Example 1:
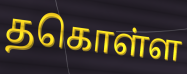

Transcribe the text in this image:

தகொள்ள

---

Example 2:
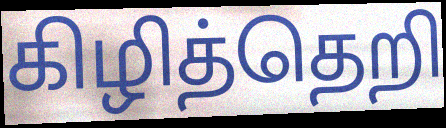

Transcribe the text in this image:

கிழித்தெறி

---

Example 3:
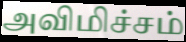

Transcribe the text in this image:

அவிமிச்சம்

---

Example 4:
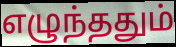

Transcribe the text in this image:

எழுந்ததும்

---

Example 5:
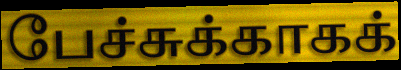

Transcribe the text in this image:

பேச்சுக்காகக்